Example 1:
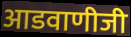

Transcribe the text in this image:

आडवाणीजी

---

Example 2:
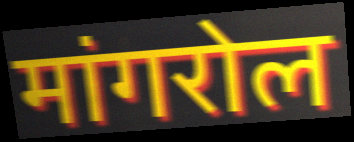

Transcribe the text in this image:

मांगरोल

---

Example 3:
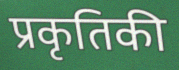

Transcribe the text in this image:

प्रकृतिकी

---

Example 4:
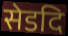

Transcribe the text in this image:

सेडदि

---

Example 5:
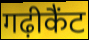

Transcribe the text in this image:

गढ़ीकैंट